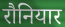
रौनियार